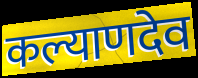
कल्याणदेव